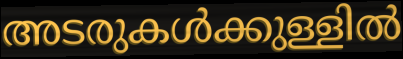
അടരുകൾക്കുള്ളിൽ